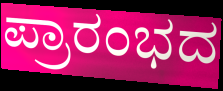
ಪ್ರಾರಂಭದ